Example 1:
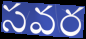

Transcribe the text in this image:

సవర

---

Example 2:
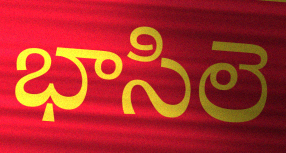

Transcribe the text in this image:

భాసిలె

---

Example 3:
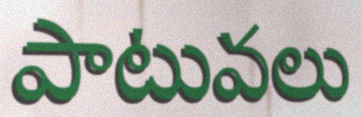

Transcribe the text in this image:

పాటువలు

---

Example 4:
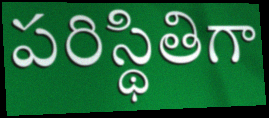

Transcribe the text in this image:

పరిస్థితిగా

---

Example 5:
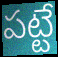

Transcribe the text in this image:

పట్టే